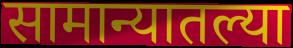
सामान्यातल्या